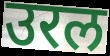
उरल